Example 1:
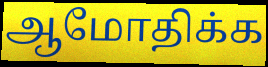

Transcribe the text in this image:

ஆமோதிக்க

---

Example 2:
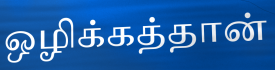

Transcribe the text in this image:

ஒழிக்கத்தான்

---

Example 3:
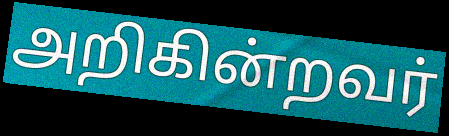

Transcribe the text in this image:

அறிகின்றவர்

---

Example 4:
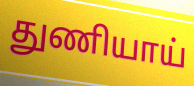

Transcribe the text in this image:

துணியாய்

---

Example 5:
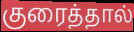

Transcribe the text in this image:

குரைத்தால்